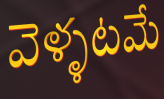
వెళ్ళటమే